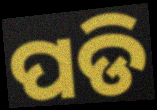
ପଡି